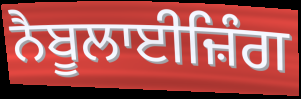
ਨੈਬੂਲਾਈਜ਼ਿੰਗ